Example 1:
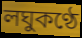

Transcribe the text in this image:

লঘুকণ্ঠে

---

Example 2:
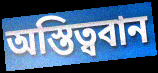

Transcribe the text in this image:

অস্তিত্ববান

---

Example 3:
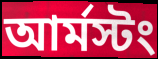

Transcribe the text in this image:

আর্মস্টং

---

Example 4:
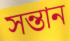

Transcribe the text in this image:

সন্তান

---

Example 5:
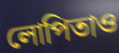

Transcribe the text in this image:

লোপিতাও